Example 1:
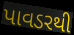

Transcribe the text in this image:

પાવડરથી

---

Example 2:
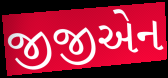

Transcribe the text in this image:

જીજીએન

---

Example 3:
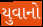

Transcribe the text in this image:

યુવાનો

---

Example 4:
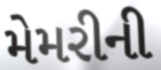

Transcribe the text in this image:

મેમરીની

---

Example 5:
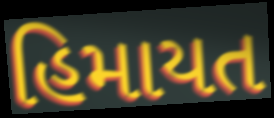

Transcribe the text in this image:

હિમાયત